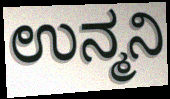
ಉನ್ಮನಿ